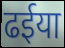
ढईया